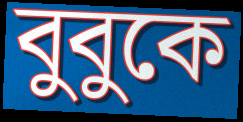
বুবুকে